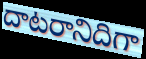
దాటరానిదిగా